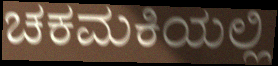
ಚಕಮಕಿಯಲ್ಲಿ